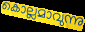
കൊല്ലമാവുന്നു